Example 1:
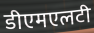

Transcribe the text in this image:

डीएमएलटी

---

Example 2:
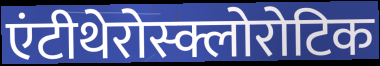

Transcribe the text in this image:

एंटीथेरोस्क्लोरोटिक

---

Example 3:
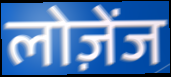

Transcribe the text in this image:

लोज़ेंज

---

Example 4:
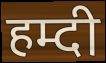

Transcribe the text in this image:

हम्दी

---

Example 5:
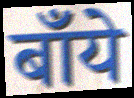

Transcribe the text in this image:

बाँये